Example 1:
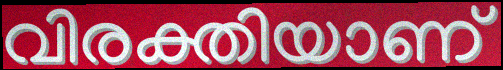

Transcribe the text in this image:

വിരക്തിയാണ്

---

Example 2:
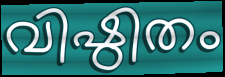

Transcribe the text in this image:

വിഷ്ഠിതം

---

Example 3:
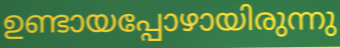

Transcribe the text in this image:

ഉണ്ടായപ്പോഴായിരുന്നു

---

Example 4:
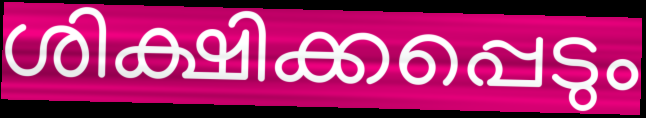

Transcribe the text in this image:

ശിക്ഷിക്കപ്പെടും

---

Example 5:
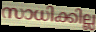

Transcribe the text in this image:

സാധിക്കില്ല